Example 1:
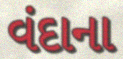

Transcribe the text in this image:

વંદાના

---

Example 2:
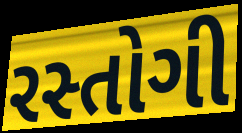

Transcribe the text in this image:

રસ્તોગી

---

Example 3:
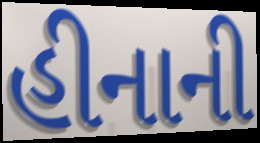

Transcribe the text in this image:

હીનાની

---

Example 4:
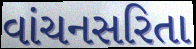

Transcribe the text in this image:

વાંચનસરિતા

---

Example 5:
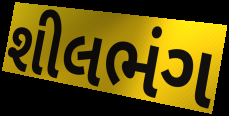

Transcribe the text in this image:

શીલભંગ